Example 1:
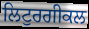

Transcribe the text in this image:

ਲਿਟੁਰਗੀਕਲ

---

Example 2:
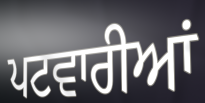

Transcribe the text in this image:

ਪਟਵਾਰੀਆਂ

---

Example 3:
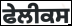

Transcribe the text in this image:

ਫੇਲੀਕਸ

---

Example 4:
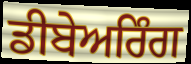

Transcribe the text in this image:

ਡੀਬੇਅਰਿੰਗ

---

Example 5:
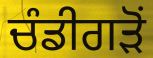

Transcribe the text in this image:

ਚੰਡੀਗੜੋਂ